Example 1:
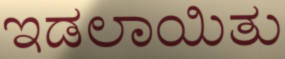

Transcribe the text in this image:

ಇಡಲಾಯಿತು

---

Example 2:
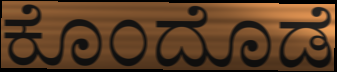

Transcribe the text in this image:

ಕೊಂದೊಡೆ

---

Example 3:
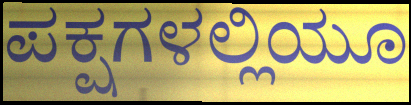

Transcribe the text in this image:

ಪಕ್ಷಗಳಲ್ಲಿಯೂ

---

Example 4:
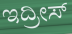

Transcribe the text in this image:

ಇದ್ರೀಸ್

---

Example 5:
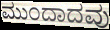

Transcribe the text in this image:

ಮುಂದಾದವು